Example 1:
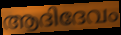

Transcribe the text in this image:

ആദിദേവം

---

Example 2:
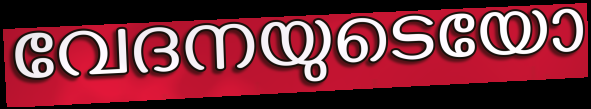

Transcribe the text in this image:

വേദനയുടെയോ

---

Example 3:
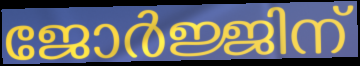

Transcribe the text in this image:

ജോർജ്ജിന്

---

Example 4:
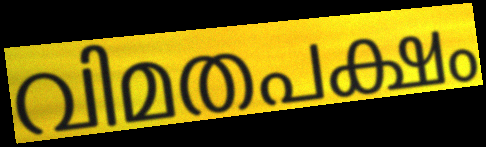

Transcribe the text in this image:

വിമതപക്ഷം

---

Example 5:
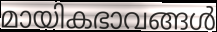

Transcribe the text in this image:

മായികഭാവങ്ങൾ